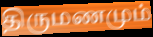
திருமணமும்